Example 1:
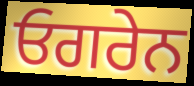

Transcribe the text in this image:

ਓਗਰੇਨ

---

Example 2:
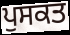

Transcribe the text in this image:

ਪੁਸਕਤ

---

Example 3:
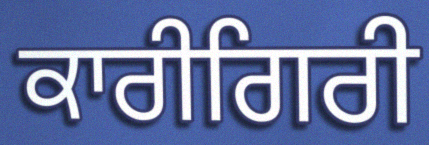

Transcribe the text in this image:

ਕਾਰੀਗਿਰੀ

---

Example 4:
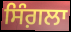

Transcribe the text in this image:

ਸਿੰਗ਼ਲਾ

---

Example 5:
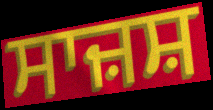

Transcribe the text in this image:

ਸਾਜ਼ਸ਼